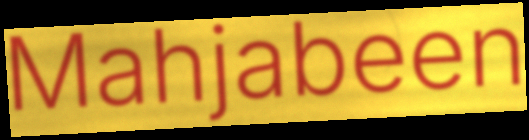
Mahjabeen